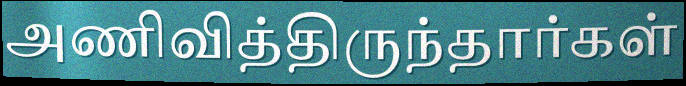
அணிவித்திருந்தார்கள்